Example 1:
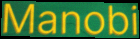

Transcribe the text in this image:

Manobi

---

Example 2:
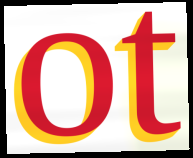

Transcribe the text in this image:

ot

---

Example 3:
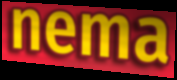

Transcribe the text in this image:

nema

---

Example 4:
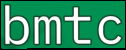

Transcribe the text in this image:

bmtc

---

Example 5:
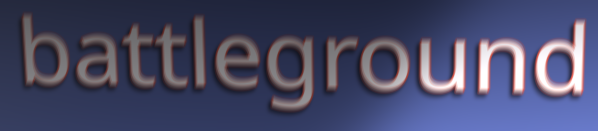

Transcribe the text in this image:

battleground